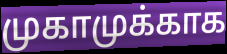
முகாமுக்காக